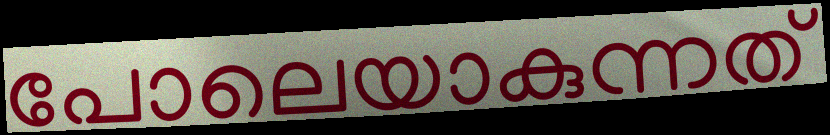
പോലെയാകുന്നത്